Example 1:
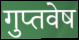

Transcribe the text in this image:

गुप्तवेष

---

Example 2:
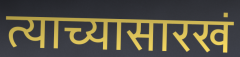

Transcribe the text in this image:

त्याच्यासारखं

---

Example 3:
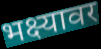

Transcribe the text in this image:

भक्ष्यावर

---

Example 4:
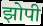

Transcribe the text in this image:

झोपी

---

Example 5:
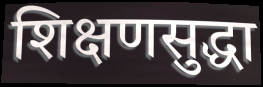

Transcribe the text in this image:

शिक्षणसुद्धा